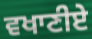
ਵਖਾਣੀਏ